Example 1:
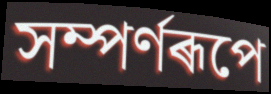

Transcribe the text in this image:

সম্পৰ্ণৰূপে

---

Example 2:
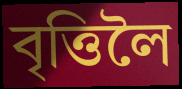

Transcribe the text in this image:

বৃত্তিলৈ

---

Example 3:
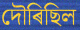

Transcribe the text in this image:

দৌৰিছিল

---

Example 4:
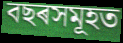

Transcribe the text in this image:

বছৰসমূহত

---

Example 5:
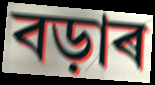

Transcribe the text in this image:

বড়াৰ